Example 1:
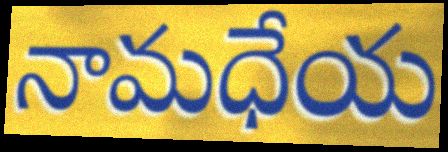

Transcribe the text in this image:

నామధేయ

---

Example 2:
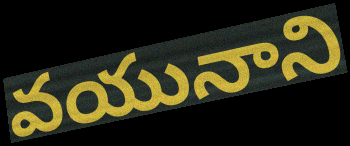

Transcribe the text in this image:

వయునాని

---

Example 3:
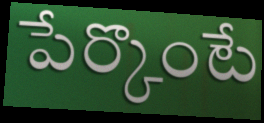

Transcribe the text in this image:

పేర్కొంటే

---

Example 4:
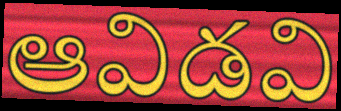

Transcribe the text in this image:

ఆవిడవి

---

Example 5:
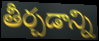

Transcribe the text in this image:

తీర్చడాన్ని